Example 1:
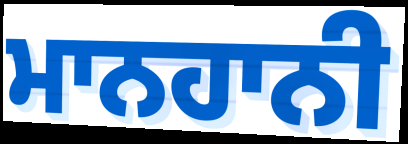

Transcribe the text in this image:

ਮਾਨਹਾਨੀ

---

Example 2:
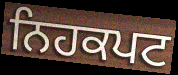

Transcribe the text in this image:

ਨਿਹਕਪਟ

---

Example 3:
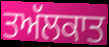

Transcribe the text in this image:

ਤਅੱਲਕਾਤ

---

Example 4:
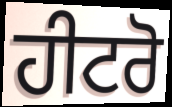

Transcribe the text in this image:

ਹੀਟਰੋ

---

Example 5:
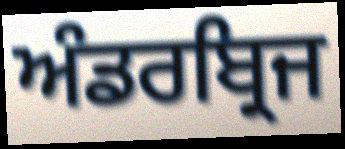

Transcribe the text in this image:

ਅੰਡਰਬ੍ਰਿਜ